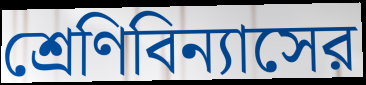
শ্রেণিবিন্যাসের